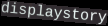
displaystory